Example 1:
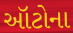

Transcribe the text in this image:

ઑટોના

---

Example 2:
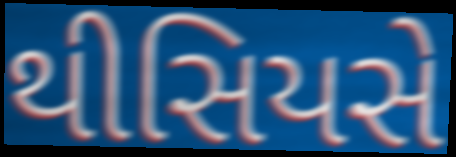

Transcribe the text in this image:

થીસિયસે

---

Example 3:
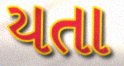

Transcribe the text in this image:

યતા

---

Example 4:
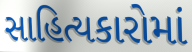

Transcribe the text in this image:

સાહિત્યકારોમાં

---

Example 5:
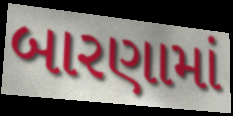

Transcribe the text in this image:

બારણામાં